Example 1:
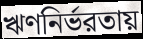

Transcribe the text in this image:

ঋণনির্ভরতায়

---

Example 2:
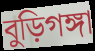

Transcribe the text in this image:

বুড়িগঙ্গা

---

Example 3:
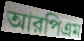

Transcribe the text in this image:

আরপিএম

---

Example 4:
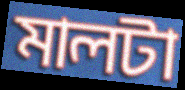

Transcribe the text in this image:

মালটা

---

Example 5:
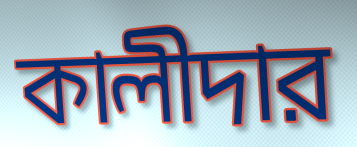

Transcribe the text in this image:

কালীদার